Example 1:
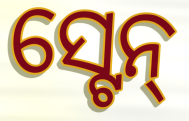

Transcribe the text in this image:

ସ୍ଟେନ୍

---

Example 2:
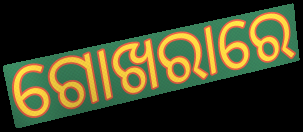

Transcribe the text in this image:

ଗୋଖରାରେ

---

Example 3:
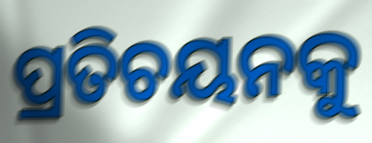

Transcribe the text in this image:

ପ୍ରତିଚୟନକୁ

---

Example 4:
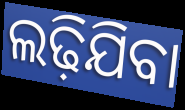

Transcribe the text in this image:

ଲଢ଼ିଯିବା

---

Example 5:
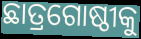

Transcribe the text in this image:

ଛାତ୍ରଗୋଷ୍ଠୀକୁ